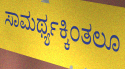
ಸಾಮರ್ಥ್ಯಕ್ಕಿಂತಲೂ